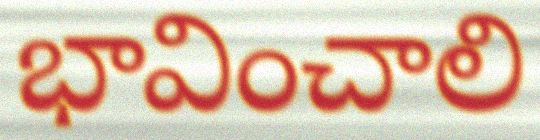
భావించాలి